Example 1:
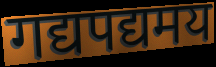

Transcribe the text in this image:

गद्यपद्यमय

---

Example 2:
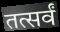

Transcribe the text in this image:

तत्सर्वं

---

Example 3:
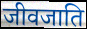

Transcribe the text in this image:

जीवजाति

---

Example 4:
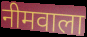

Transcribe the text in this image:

नीमवाला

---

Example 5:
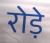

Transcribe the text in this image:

रोड़े